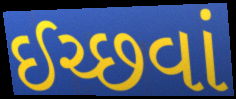
ઈચ્છવાં